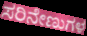
ಸರಿನೇಣುಗಳ